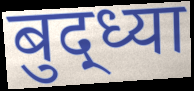
बुद्ध्या